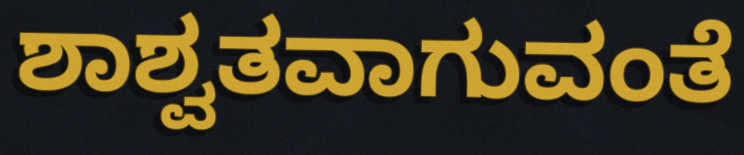
ಶಾಶ್ವತವಾಗುವಂತೆ